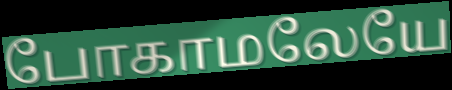
போகாமலேயே